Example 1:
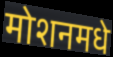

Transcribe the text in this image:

मोशनमधे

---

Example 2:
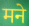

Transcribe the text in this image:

मने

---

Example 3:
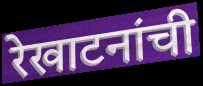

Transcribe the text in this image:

रेखाटनांची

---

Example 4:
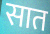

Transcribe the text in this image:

सात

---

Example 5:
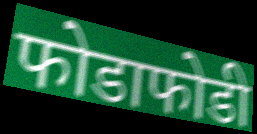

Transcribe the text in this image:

फोडाफोडी